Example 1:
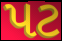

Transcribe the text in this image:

પટ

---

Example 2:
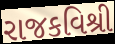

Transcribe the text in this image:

રાજકવિશ્રી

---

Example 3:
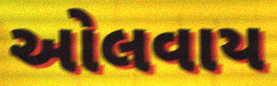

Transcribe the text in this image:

ઓલવાય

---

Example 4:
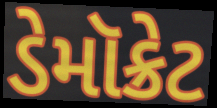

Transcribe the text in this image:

ડેમૉક્રેટ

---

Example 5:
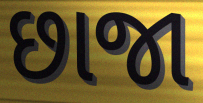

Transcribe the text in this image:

છાજા